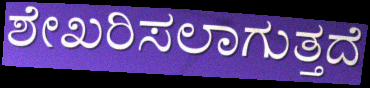
ಶೇಖರಿಸಲಾಗುತ್ತದೆ